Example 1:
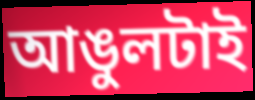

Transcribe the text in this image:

আঙুলটাই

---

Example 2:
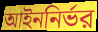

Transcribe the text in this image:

আইননির্ভর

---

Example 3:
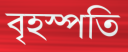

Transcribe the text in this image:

বৃহস্পতি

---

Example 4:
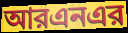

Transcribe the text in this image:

আরএনএর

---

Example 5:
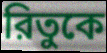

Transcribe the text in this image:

রিতুকে